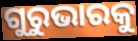
ଗୁରୁଭାରକୁ